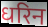
धरिन